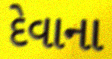
દેવાના